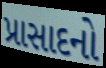
પ્રાસાદનો